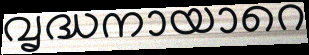
വൃദ്ധനായാറെ